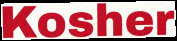
Kosher